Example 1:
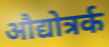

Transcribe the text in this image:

औद्योत्रर्क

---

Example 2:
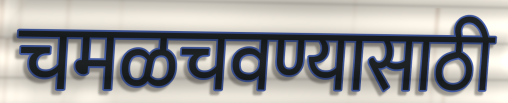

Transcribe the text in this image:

चमळचवण्यासाठी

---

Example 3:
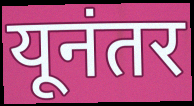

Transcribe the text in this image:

यूनंतर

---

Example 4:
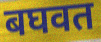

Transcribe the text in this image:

बघवत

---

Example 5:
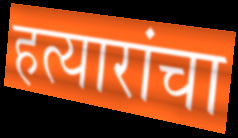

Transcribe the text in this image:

हत्यारांचा